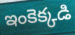
ఇంకెక్కడి